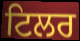
ਟਿਲਰ